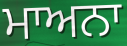
ਮਾਅਨਾ